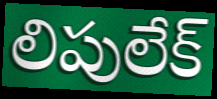
లిపులేక్